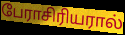
பேராசிரியரால்